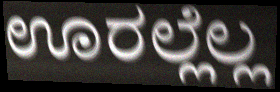
ಊರಲ್ಲೆಲ್ಲ